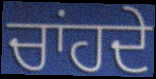
ਚਾਂਹਦੇ